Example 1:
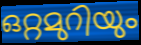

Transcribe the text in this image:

ഒറ്റമുറിയും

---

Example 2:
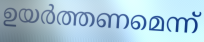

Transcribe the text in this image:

ഉയർത്തണമെന്ന്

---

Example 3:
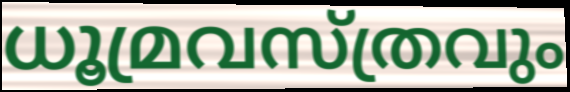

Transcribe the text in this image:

ധൂമ്രവസ്ത്രവും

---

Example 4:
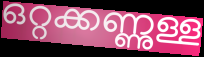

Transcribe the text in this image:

ഒറ്റക്കണ്ണുള്ള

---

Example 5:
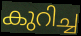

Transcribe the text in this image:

കുറിച്ച